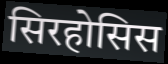
सिरहोसिस